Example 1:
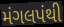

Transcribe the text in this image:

મંગલપંથી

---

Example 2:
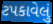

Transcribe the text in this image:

ટપકાવેલું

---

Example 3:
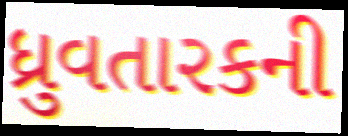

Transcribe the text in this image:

ધ્રુવતારકની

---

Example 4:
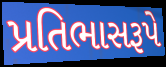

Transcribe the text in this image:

પ્રતિભાસરૂપે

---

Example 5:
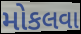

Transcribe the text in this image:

મોકલવા